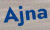
Ajna